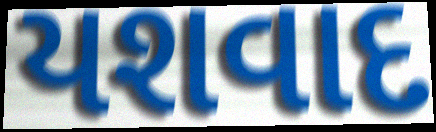
યશવાદ